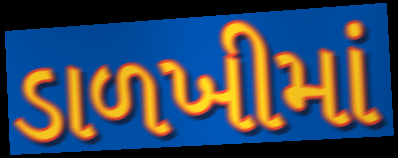
ડાળખીમાં